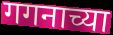
गगनाच्या